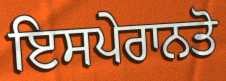
ਇਸਪੇਰਾਨਤੋ